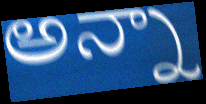
అన్నా